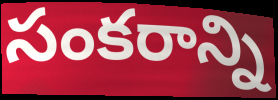
సంకరాన్ని